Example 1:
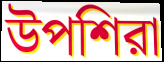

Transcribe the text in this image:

উপশিরা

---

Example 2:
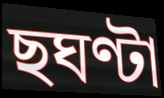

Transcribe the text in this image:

ছঘণ্টা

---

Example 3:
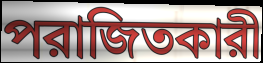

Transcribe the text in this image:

পরাজিতকারী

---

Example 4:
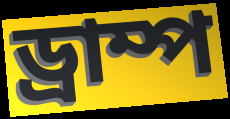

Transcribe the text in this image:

ড্রাম্প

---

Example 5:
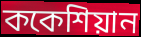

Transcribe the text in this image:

ককেশিয়ান